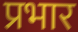
प्रभार